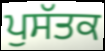
ਪੁਸੱਤਕ